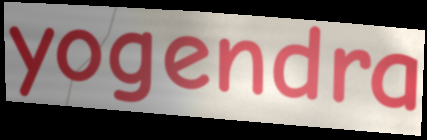
yogendra